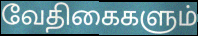
வேதிகைகளும்